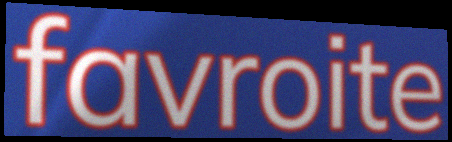
favroite